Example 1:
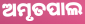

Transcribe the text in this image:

ଅମୃତପାଲ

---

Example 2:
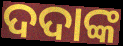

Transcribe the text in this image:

ଦଦାଙ୍କ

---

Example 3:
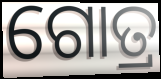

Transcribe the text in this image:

ଗୋତ୍ର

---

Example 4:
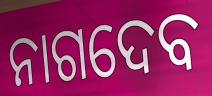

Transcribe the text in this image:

ନାଗଦେବ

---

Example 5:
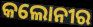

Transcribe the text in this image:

କଲୋନୀର